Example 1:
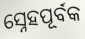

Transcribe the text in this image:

ସ୍ନେହପୂର୍ବକ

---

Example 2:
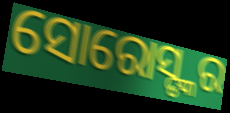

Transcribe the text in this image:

ସୋରୋସ୍ଙ୍କର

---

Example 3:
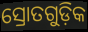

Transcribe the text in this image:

ସ୍ରୋତଗୁଡ଼ିକ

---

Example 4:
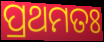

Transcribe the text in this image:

ପ୍ରଥମତଃ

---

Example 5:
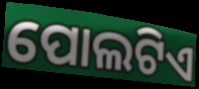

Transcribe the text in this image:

ପୋଲଟିଏ